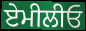
ਏਮੀਲੀਓ